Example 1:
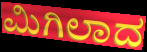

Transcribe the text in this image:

ಮಿಗಿಲಾದ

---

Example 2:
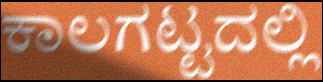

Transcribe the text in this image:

ಕಾಲಗಟ್ಟದಲ್ಲಿ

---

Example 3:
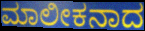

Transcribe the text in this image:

ಮಾಲೀಕನಾದ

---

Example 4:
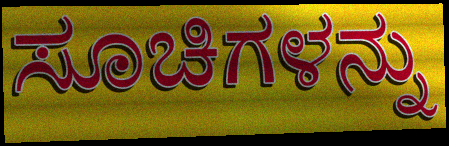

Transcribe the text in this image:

ಸೂಚಿಗಳನ್ನು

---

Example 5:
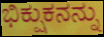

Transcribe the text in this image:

ಭಿಕ್ಷುಕನನ್ನು